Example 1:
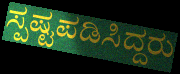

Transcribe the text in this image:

ಸ್ಪಷ್ಟಪಡಿಸಿದ್ದರು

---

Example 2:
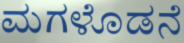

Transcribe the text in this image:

ಮಗಳೊಡನೆ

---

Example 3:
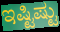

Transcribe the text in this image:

ಇಷ್ಟಿಷ್ಟು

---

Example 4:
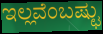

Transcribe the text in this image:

ಇಲ್ಲವೆಂಬಷ್ಟು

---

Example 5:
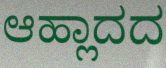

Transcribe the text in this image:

ಆಹ್ಲಾದದ